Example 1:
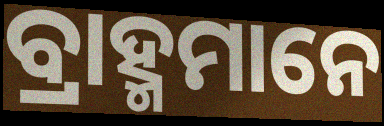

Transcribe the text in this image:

ବ୍ରାହ୍ମମାନେ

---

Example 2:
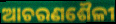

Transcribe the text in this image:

ଆଚରଣଶୈଳୀ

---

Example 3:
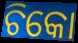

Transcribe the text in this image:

ଚିକୋ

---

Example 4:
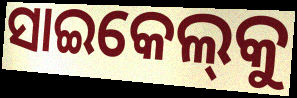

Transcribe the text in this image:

ସାଇକେଲ୍‌କୁ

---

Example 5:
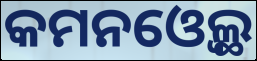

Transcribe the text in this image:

କମନଓ୍ବେଲ୍ଥ